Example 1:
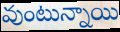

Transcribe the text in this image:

వుంటున్నాయి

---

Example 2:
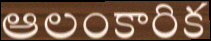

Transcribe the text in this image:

ఆలంకారిక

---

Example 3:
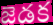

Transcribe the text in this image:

జెడక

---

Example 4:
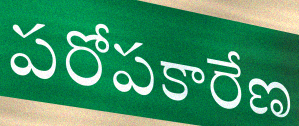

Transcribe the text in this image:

పరోపకారేణ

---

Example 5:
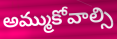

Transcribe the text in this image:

అమ్ముకోవాల్సి